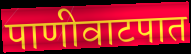
पाणीवाटपात